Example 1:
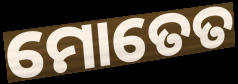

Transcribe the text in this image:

ମୋତେତ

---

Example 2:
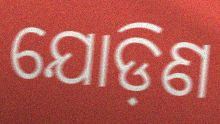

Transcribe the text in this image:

ଯୋଡ଼ିଣ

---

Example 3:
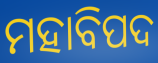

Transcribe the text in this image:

ମହାବିପଦ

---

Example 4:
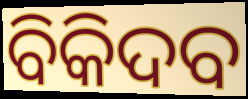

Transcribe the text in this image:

ବିକିଦବ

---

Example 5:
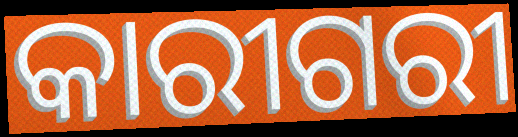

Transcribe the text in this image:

କାରୀଗରୀ